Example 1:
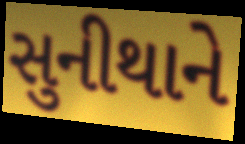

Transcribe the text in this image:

સુનીથાને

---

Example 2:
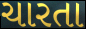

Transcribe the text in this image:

ચારતા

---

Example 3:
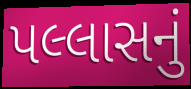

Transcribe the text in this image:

પલ્લાસનું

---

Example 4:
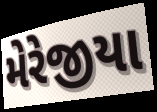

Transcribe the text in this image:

મેરેજીયા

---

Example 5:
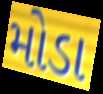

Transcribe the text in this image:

મોડા